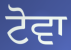
ਟੋਵਾ